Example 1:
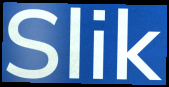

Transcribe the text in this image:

Slik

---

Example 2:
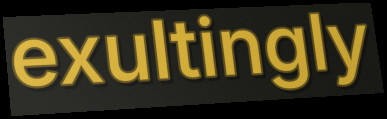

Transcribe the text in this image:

exultingly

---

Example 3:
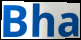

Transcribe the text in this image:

Bha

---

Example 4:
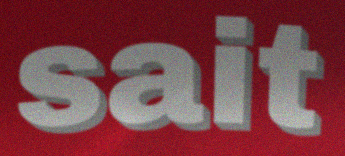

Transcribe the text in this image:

sait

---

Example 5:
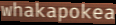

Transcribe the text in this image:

whakapokea